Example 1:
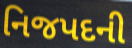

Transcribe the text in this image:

નિજપદની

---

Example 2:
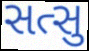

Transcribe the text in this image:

સત્સુ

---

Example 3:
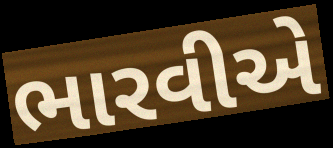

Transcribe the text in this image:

ભારવીએ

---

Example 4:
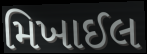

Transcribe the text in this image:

મિખાઈલ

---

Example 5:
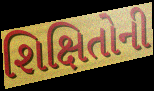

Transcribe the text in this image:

શિક્ષિતોની